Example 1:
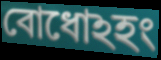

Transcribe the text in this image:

বোধোঽহং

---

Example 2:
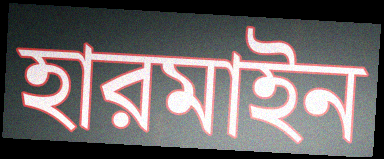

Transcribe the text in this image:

হারমাইন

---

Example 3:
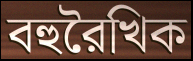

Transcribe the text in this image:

বহুরৈখিক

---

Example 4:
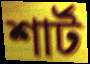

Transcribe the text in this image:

শার্ট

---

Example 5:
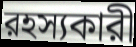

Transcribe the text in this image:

রহস্যকারী